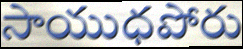
సాయుధపోరు